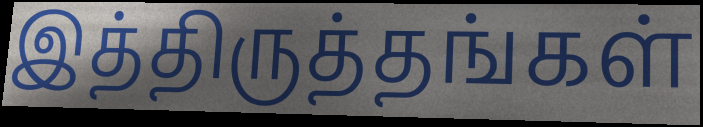
இத்திருத்தங்கள்